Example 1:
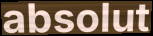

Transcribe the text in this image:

absolut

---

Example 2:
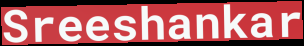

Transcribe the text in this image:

Sreeshankar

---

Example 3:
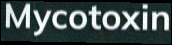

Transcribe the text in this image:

Mycotoxin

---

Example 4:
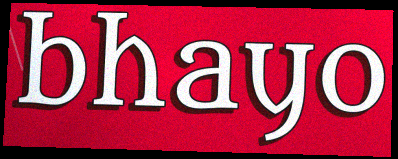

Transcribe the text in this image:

bhayo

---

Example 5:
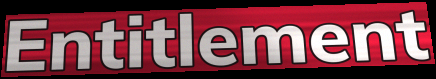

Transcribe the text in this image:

Entitlement